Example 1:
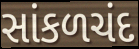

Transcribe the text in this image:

સાંકળચંદ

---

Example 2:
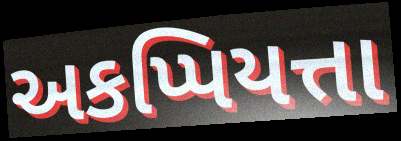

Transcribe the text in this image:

અકપ્પિયત્તા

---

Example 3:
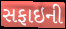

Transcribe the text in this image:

સફાઇની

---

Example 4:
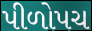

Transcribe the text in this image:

પીળોપચ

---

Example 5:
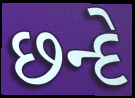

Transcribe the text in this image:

છન્દે